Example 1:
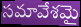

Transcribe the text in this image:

సమావేశమై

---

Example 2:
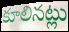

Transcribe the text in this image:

కూలినట్లు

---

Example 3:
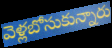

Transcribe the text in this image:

వెళ్లబోసుకున్నారు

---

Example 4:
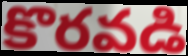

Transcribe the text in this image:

కొరవడి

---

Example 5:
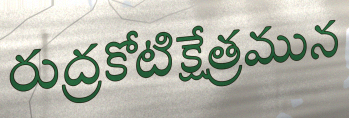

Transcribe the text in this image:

రుద్రకోటిక్షేత్రమున